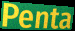
Penta